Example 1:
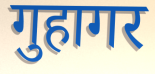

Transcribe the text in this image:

गुहागर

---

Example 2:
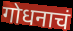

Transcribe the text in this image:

गोधनाचं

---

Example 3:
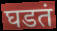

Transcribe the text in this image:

घडतं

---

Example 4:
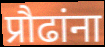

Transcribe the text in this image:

प्रौढांना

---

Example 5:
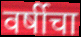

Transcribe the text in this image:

वर्षीचा